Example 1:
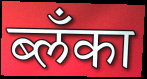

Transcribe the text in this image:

ब्लँका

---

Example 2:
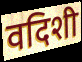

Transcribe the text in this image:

वदिशी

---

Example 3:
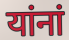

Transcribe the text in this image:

यांनां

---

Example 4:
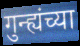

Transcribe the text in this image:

गुन्ह्यंच्या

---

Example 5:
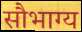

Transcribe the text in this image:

सौभाग्य